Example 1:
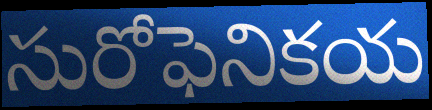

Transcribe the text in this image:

సురోఫెనికయ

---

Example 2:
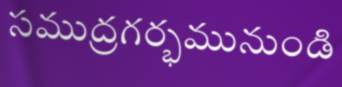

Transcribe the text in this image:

సముద్రగర్భమునుండి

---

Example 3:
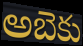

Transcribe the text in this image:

అబెకు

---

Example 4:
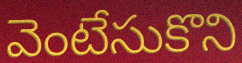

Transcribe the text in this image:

వెంటేసుకొని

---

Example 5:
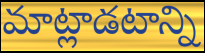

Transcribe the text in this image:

మాట్లాడటాన్ని